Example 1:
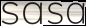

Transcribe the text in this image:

sasa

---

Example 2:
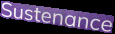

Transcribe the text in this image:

Sustenance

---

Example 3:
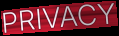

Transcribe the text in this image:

PRIVACY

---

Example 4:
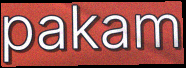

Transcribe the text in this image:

pakam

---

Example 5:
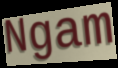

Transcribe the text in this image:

Ngam